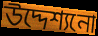
উদ্দেশ্যনো